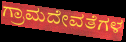
ಗ್ರಾಮದೇವತೆಗಳ